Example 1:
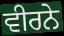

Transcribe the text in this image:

ਵੀਰਨੇ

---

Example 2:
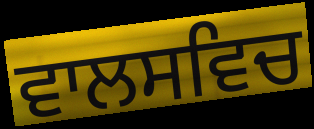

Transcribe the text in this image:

ਵਾਲਸਵਿਚ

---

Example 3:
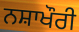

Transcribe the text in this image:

ਨਸ਼ਾਖੌਰੀ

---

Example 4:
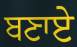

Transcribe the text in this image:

ਬਣਾਏ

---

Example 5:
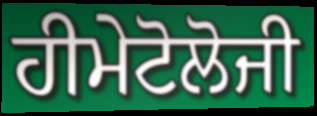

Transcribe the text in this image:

ਹੀਮੇਟੋਲੋਜੀ